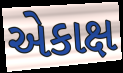
એકાક્ષ